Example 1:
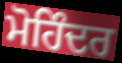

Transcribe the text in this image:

ਮੋਹਿੰਦਰ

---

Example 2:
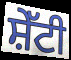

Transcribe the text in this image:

ਸ਼ੇੱਟੀ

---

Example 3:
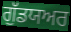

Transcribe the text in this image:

ਗੁੱਡਯਅਰ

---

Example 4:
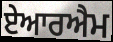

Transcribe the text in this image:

ਏਆਰਐਮ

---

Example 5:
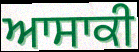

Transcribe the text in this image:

ਆਸਾਕੀ